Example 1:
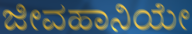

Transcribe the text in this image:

ಜೀವಹಾನಿಯೇ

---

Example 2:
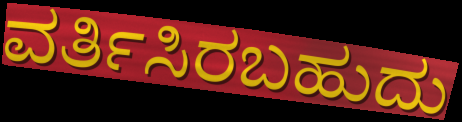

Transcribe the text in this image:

ವರ್ತಿಸಿರಬಹುದು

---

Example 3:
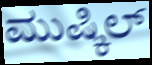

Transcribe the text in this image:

ಮುಷ್ಕಿಲ್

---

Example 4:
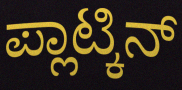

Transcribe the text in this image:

ಪ್ಲಾಟ್ಕಿನ್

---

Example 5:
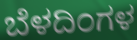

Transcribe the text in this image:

ಬೆಳದಿಂಗಳ